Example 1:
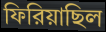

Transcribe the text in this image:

ফিরিয়াছিল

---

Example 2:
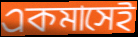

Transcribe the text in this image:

একমাসেই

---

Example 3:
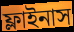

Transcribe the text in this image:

ফ্লাইনাস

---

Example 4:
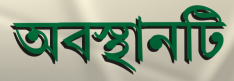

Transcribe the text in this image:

অবস্থানটি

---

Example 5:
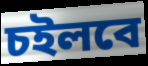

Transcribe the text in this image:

চইলবে